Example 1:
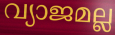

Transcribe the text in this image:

വ്യാജമല്ല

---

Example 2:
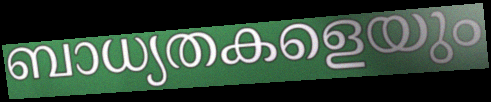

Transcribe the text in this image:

ബാധ്യതകളെയും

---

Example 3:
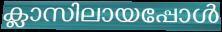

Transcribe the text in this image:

ക്ലാസിലായപ്പോൾ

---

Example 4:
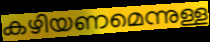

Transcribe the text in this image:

കഴിയണമെന്നുള്ള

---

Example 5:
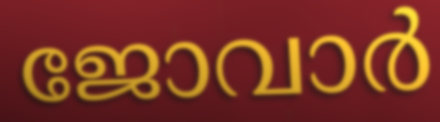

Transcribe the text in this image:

ജോവാർ